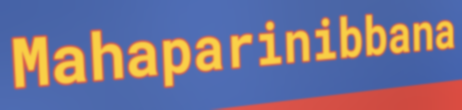
Mahaparinibbana